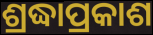
ଶ୍ରଦ୍ଧାପ୍ରକାଶ